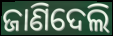
ଜାଣିଦେଲି